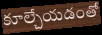
కూల్చేయడంతో